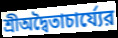
শ্রীঅদ্বৈতাচার্য্যের